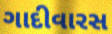
ગાદીવારસ